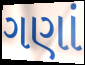
ગણાં